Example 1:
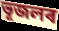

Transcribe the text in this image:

ভূজলৰ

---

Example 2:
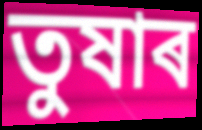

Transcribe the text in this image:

তুষাৰ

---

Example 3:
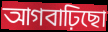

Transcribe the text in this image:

আগবাঢ়িছো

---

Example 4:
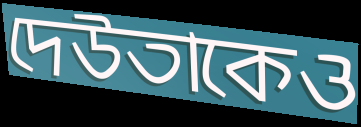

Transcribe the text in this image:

দেউতাকেও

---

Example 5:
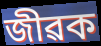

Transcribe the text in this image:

জীৱক